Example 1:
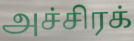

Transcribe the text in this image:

அச்சிரக்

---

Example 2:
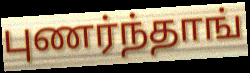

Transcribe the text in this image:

புணர்ந்தாங்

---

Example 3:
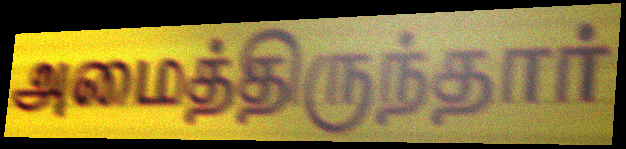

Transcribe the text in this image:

அமைத்திருந்தார்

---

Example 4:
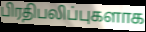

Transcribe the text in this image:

பிரதிபலிப்புகளாக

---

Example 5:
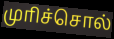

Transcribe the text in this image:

முரிச்சொல்